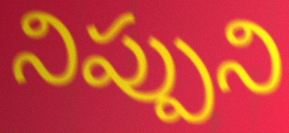
నిప్పుని